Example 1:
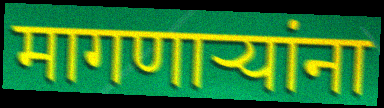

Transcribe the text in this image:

मागणार्‍यांना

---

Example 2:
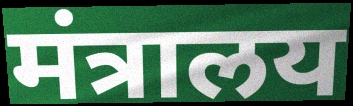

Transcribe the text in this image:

मंत्रालय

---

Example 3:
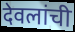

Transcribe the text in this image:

देवलांची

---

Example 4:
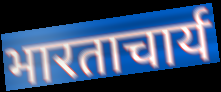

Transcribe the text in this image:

भारताचार्य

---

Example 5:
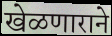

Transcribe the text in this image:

खेळणाराने